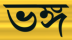
ভঙ্গ